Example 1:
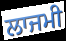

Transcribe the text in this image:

ਲਾਜਮੀ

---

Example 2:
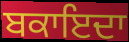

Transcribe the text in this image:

ਬਕਾਇਦਾ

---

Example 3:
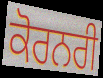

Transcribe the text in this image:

ਕੋਰਨਰੀ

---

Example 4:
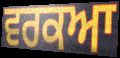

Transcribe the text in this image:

ਵਰਕਆ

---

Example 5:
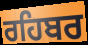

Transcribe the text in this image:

ਰਹਿਬਰ